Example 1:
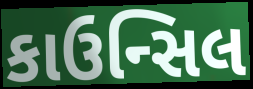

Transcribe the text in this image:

કાઉન્સિલ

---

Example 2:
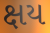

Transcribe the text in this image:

ક્ષય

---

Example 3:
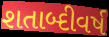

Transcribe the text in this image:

શતાબ્દીવર્ષ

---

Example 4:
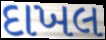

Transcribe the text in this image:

દાખલ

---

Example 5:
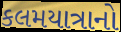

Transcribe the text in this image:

કલમયાત્રાનો